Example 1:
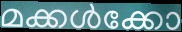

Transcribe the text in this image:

മക്കൾക്കോ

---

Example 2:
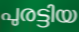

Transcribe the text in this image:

പുരട്ടിയ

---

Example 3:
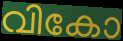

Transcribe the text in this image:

വികോ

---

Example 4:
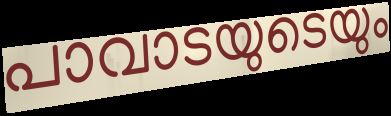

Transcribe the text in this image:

പാവാടയുടെയും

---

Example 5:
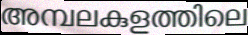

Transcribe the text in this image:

അമ്പലകുളത്തിലെ